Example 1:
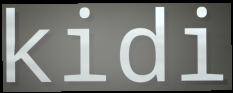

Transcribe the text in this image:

kidi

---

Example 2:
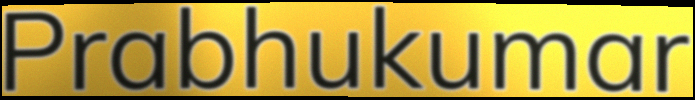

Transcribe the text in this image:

Prabhukumar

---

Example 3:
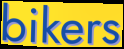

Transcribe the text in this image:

bikers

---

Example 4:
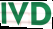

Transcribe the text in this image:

IVD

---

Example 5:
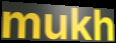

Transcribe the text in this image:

mukh